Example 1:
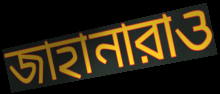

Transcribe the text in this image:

জাহানারাও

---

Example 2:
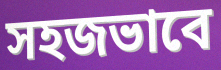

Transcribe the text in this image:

সহজভাবে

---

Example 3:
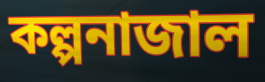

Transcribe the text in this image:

কল্পনাজাল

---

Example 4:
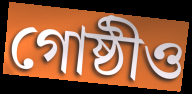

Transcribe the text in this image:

গোষ্ঠীও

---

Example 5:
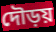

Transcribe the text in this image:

দৌড়য়